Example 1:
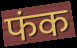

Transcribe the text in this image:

फंक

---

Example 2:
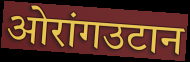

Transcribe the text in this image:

ओरांगउटान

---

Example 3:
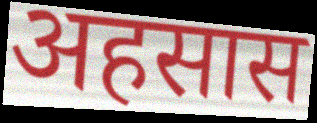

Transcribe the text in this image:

अहसास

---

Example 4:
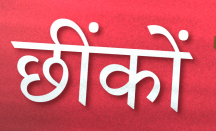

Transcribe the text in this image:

छींकों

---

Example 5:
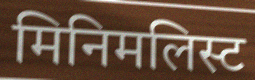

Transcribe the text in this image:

मिनिमलिस्ट